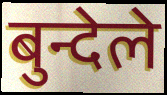
बुन्देले